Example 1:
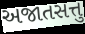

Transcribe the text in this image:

અજાતસત્તુ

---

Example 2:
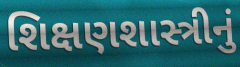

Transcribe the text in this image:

શિક્ષણશાસ્ત્રીનું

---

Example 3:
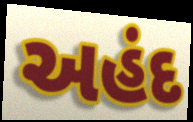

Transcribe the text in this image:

અહંદ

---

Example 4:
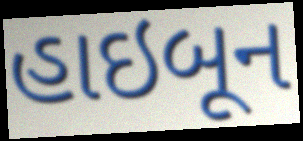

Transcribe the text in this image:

હાઇબૂન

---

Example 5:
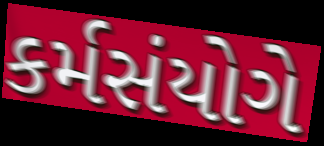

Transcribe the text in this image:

કર્મસંયોગે